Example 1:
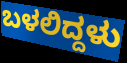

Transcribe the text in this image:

ಬಳಲಿದ್ದಳು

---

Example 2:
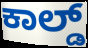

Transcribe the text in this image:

ಕಾಲ್ಡ್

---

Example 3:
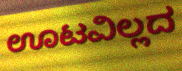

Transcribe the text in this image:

ಊಟವಿಲ್ಲದ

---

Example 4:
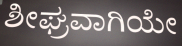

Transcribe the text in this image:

ಶೀಘ್ರವಾಗಿಯೇ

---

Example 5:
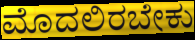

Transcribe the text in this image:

ಮೊದಲಿರಬೇಕು